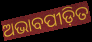
ଅଭାବପୀଡ଼ିତ